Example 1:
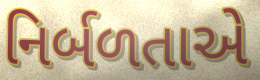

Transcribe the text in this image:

નિર્બળતાએ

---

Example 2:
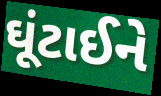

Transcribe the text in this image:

ઘૂંટાઈને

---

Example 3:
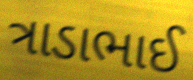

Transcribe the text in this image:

ત્રાડાભાઈ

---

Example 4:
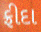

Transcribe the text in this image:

ફ્રીદા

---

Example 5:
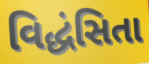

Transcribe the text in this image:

વિદ્ધંસિતા